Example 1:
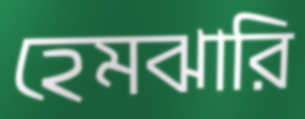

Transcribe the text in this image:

হেমঝারি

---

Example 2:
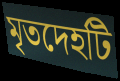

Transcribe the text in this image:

মৃতদেহটি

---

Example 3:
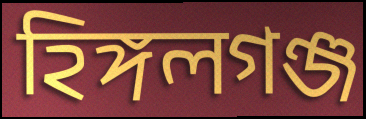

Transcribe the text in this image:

হিঙ্গলগঞ্জ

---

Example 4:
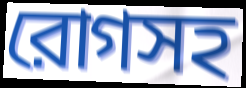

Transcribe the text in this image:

রোগসহ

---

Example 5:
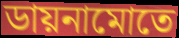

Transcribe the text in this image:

ডায়নামোতে